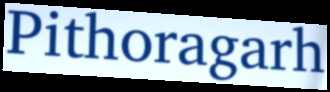
Pithoragarh